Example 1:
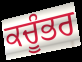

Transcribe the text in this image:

ਕਚੂੰਭਰ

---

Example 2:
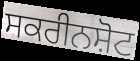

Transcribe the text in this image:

ਸਕਰੀਨਸ਼ੋਟ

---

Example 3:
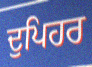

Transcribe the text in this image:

ਦੁਪਿਹਰ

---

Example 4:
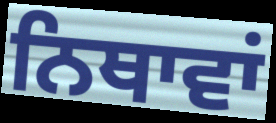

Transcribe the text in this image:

ਨਿਥਾਵਾਂ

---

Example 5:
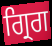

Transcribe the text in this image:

ਗ੍ਰਿਗ